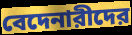
বেদেনারীদের